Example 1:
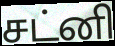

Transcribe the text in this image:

சட்னி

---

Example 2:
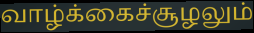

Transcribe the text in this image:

வாழ்க்கைச்சூழலும்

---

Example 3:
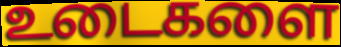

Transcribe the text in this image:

உடைகளை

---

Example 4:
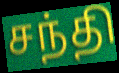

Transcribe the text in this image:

சந்தி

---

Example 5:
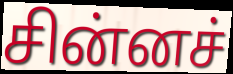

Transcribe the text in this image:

சின்னச்